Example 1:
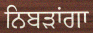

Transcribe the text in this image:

ਨਿਬੜਾਂਗਾ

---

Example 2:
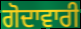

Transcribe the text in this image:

ਗੋਦਾਵਾਰੀ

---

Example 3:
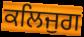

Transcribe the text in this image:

ਕਲਿਜੁਗ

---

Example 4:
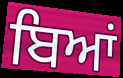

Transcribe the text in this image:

ਬਿਆਂ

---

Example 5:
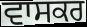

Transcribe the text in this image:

ਵਾਸਕਰ